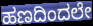
ಹಣದಿಂದಲೇ